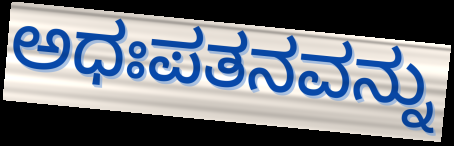
ಅಧಃಪತನವನ್ನು